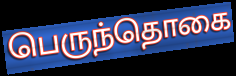
பெருந்தொகை